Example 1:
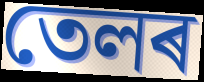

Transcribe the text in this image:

তেলৰ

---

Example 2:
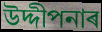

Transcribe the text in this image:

উদ্দীপনাৰ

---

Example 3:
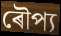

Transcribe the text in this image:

ৰৌপ্য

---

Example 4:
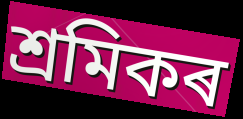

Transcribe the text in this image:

শ্ৰমিকৰ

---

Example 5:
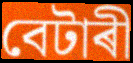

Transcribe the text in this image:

বেটাৰী